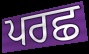
ਪਰਛ